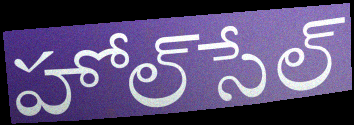
హోల్‌సేల్